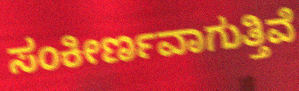
ಸಂಕೀರ್ಣವಾಗುತ್ತಿವೆ